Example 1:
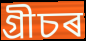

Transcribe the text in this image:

গ্ৰীচৰ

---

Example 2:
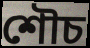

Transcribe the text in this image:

শৌচ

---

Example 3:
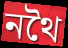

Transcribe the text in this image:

নথৈ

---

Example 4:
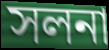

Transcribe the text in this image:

সলনা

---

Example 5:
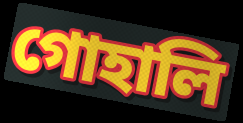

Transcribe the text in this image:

গোহালি